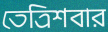
তেত্রিশবার